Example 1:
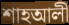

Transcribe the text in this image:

শাহআলী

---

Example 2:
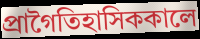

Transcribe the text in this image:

প্রাগৈতিহাসিককালে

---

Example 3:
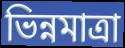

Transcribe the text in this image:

ভিন্নমাত্রা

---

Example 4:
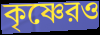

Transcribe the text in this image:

কৃষ্ণেরও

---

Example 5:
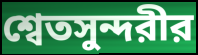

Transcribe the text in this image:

শ্বেতসুন্দরীর